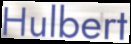
Hulbert